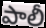
పాలీ